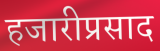
हजारीप्रसाद